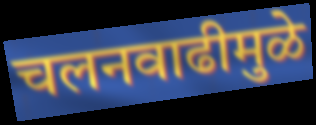
चलनवाढीमुळे